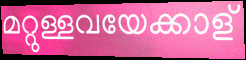
മറ്റുള്ളവയേക്കാള്